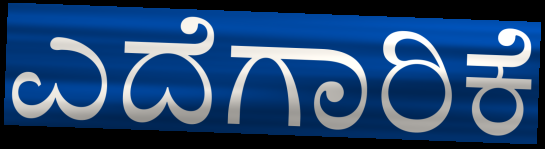
ಎದೆಗಾರಿಕೆ